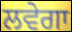
ਲਵੇਗਾ